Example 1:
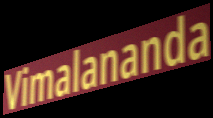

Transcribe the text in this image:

Vimalananda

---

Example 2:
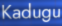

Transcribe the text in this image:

Kadugu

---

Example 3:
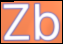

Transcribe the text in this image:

Zb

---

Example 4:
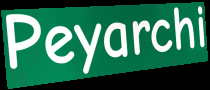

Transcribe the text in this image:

Peyarchi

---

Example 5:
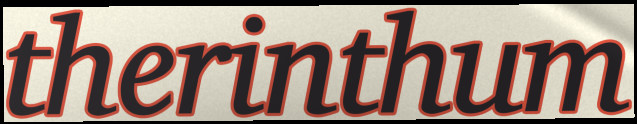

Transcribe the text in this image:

therinthum